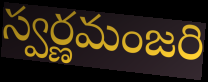
స్వర్ణమంజరి